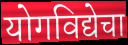
योगविद्येचा